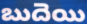
బుదెయి